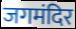
जगमंदिर